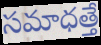
సమాధత్తే